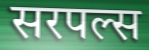
सरपल्स